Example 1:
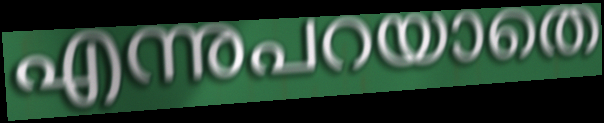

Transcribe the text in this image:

എന്നുപറയാതെ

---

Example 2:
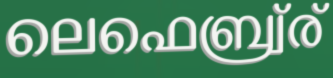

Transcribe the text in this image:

ലെഫെബ്ര്വ്ര്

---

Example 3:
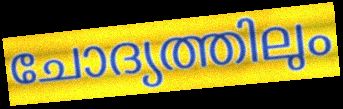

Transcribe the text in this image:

ചോദ്യത്തിലും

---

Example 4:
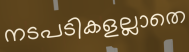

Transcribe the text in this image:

നടപടികളല്ലാതെ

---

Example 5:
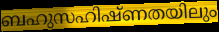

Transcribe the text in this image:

ബഹുസഹിഷ്ണതയിലും